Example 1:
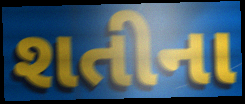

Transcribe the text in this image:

શતીના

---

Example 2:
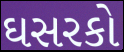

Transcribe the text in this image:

ઘસરકો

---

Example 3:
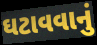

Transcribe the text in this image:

ઘટાવવાનું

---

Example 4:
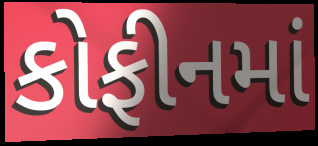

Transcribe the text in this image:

કોફીનમાં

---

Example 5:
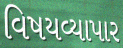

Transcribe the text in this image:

વિષયવ્યાપાર